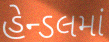
હેન્ડલમાં